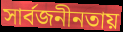
সার্বজনীনতায়